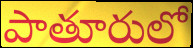
పాతూరులో